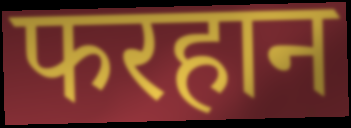
फरहान